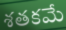
శతకమే